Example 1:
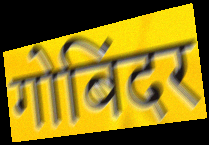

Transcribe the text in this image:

गोबिंदर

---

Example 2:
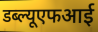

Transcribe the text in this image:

डब्ल्यूएफआई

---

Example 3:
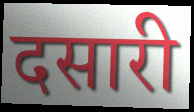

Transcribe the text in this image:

दसारी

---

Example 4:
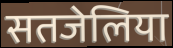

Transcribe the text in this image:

सतजेलिया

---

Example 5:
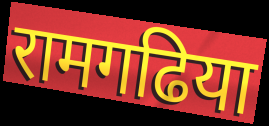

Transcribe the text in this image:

रामगढिया